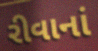
રીવાનાં